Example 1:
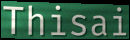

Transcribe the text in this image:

Thisai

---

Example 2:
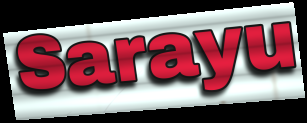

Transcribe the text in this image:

Sarayu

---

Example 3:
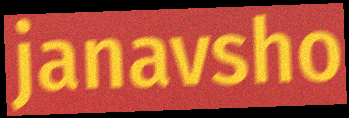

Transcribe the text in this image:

janavsho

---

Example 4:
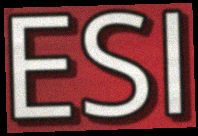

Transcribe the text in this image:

ESI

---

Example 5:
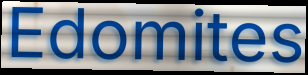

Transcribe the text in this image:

Edomites